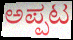
ಅಪ್ಪಟ